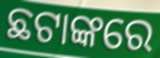
ଛଟାଙ୍କରେ